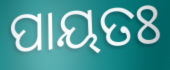
ପାୟତଃ